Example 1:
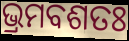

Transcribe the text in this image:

ଭ୍ରମବଶତଃ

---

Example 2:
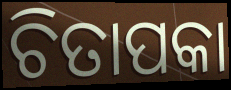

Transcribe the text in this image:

ଚିତାପକା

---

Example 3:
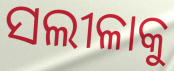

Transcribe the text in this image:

ସଲୀଳାକୁ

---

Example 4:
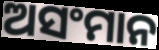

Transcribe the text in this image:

ଅସଂମାନ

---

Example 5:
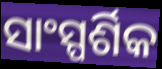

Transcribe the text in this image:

ସାଂସ୍ପର୍ଶିକ